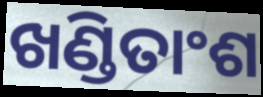
ଖଣ୍ଡିତାଂଶ